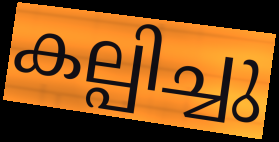
കല്പിച്ചു